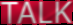
TALK